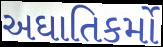
અઘાતિકર્મો